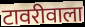
टावरीवाला